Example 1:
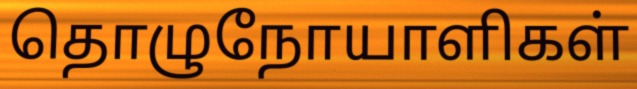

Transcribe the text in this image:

தொழுநோயாளிகள்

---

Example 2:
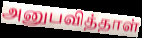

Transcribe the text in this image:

அனுபவித்தாள்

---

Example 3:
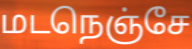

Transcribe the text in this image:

மடநெஞ்சே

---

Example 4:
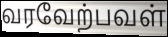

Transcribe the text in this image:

வரவேற்பவள்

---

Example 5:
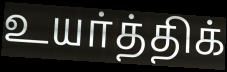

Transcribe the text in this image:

உயர்த்திக்